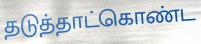
தடுத்தாட்கொண்ட